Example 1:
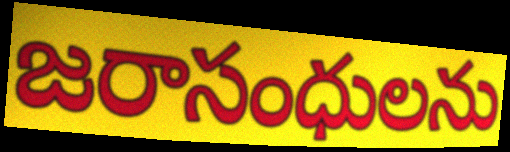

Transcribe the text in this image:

జరాసంధులను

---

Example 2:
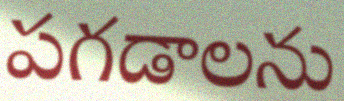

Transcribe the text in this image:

పగడాలను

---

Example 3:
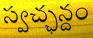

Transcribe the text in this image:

స్వచ్ఛన్దం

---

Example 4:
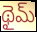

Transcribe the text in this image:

థైమ్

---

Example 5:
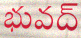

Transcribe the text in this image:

భువద్